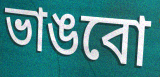
ভাঙবো